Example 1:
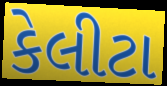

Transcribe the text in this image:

કેલીટા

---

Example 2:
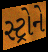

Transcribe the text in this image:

સ્ટ્રોને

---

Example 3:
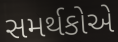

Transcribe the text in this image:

સમર્થકોએ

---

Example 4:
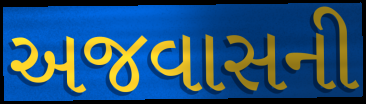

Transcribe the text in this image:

અજવાસની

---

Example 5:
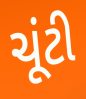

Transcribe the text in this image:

ચૂંટી